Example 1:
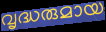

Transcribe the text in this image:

വൃദ്ധരുമായ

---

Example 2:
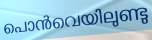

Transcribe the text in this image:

പൊൻവെയിലുണ്ടു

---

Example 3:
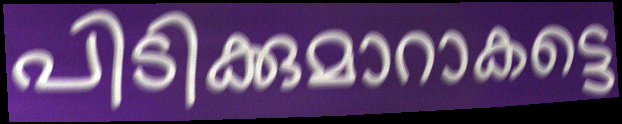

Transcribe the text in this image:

പിടിക്കുമാറാകട്ടെ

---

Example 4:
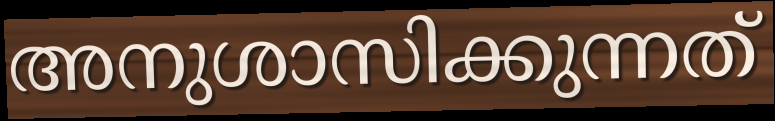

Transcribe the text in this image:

അനുശാസിക്കുന്നത്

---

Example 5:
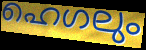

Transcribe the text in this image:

ഹെഗലും